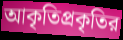
আকৃতিপ্রকৃতির